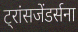
ट्रांसजेंडर्सना